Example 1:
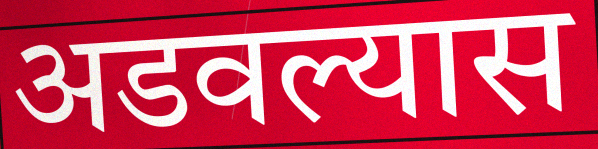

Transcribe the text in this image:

अडवल्यास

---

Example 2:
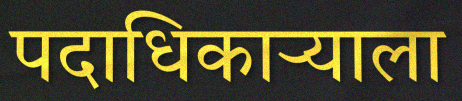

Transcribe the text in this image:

पदाधिकाऱ्याला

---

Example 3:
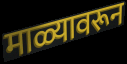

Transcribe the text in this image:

माळ्यावरून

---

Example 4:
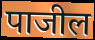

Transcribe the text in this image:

पाजील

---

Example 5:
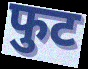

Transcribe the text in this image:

फुट